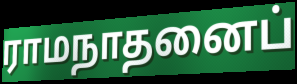
ராமநாதனைப்